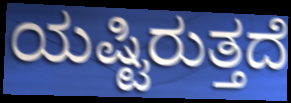
ಯಷ್ಟಿರುತ್ತದೆ